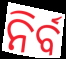
ନିର୍ବ